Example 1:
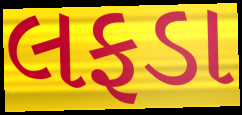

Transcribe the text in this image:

લફડા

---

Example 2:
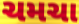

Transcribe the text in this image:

ચમચા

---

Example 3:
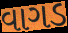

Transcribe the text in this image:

વાગડ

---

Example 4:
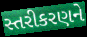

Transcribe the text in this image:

સ્તરીકરણને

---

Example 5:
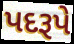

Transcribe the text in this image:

પદરૂપે